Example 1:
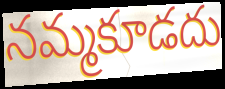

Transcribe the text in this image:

నమ్మకూడదు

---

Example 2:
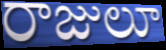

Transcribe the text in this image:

రాజులూ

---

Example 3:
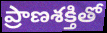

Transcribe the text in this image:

ప్రాణశక్తితో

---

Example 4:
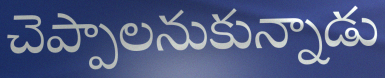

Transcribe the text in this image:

చెప్పాలనుకున్నాడు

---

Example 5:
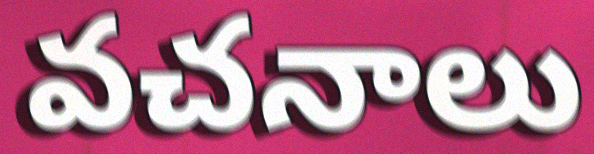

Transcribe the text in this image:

వచనాలు